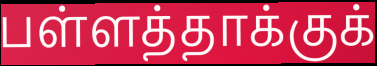
பள்ளத்தாக்குக்